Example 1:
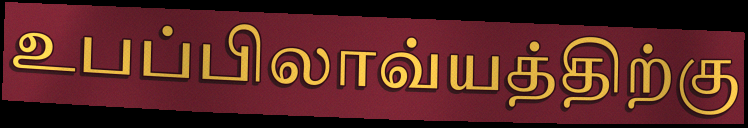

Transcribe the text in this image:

உபப்பிலாவ்யத்திற்கு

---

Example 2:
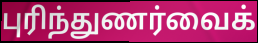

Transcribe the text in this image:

புரிந்துணர்வைக்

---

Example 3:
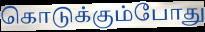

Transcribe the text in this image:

கொடுக்கும்போது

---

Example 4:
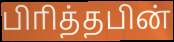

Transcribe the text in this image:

பிரித்தபின்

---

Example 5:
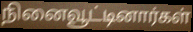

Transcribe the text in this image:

நினைவூட்டினார்கள்